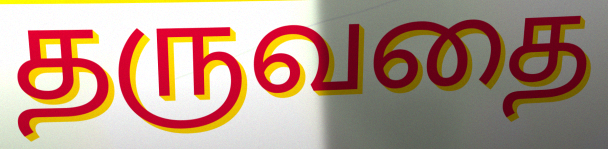
தருவதை